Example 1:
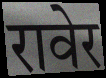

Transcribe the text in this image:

रावेर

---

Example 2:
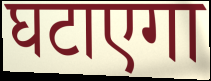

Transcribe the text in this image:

घटाएगा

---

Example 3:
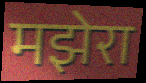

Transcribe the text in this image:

मझेरा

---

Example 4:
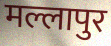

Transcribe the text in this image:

मल्लापुर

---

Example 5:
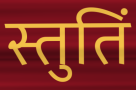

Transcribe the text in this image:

स्तुतिं